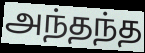
அந்தந்த